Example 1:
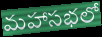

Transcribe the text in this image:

మహాసభలో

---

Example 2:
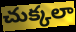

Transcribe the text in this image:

చుక్కలా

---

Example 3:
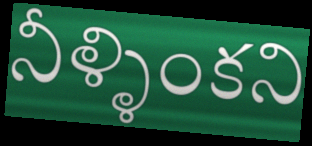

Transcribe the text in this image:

నీళ్ళింకని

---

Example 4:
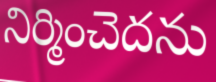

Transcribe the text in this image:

నిర్మించెదను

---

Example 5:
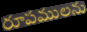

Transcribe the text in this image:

రూపములను